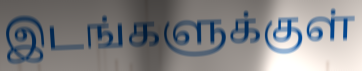
இடங்களுக்குள்